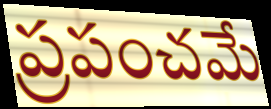
ప్రపంచమే